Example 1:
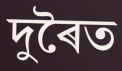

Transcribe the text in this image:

দুৰৈত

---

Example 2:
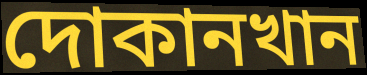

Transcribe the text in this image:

দোকানখান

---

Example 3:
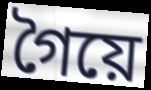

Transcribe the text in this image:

গৈয়ে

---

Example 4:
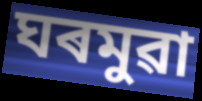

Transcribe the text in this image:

ঘৰমুৱা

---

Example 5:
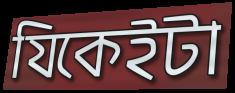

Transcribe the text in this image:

যিকেইটা